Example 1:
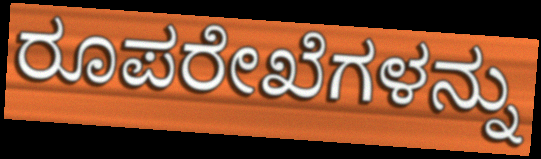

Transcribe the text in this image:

ರೂಪರೇಖೆಗಳನ್ನು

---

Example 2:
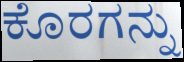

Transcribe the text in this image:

ಕೊರಗನ್ನು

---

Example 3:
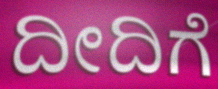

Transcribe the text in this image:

ದೀದಿಗೆ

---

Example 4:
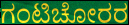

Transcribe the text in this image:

ಗಂಟಿಚೋರರ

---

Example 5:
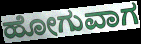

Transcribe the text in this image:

ಹೋಗುವಾಗ